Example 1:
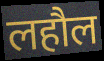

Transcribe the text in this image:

लहौल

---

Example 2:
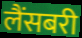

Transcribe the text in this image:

लैंसबरी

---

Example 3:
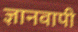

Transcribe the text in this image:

ज्ञानवापी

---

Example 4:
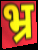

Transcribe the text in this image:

भ्र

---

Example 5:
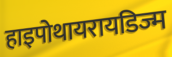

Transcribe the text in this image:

हाइपोथायरायडिज्म